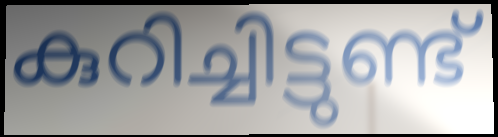
കുറിച്ചിട്ടുണ്ട്